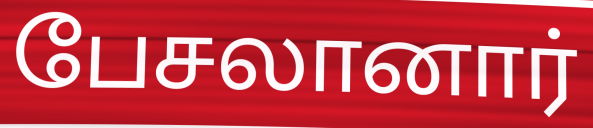
பேசலானார்